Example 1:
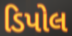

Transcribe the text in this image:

ડિપોલ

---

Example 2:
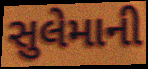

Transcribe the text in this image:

સુલેમાની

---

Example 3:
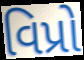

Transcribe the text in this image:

વિપ્રો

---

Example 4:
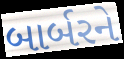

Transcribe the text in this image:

બાર્બરને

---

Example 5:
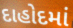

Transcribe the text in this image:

દાહોદમાં